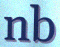
nb